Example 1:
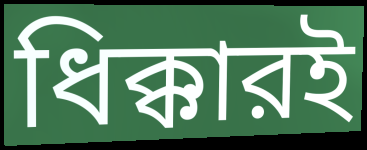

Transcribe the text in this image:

ধিক্কারই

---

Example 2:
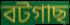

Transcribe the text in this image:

বটগাছ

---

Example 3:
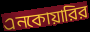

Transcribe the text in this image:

এনকোয়ারির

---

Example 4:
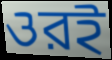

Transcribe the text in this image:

ওরই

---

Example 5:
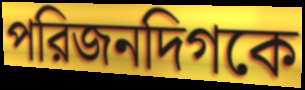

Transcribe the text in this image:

পরিজনদিগকে